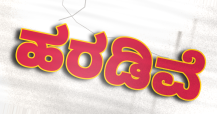
ಹರಡಿವೆ